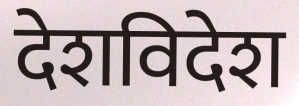
देशविदेश